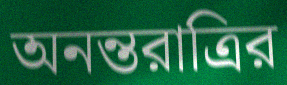
অনন্তরাত্রির